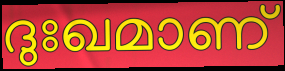
ദുഃഖമാണ്